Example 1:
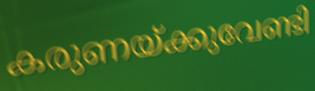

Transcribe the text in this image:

കരുണയ്ക്കുവേണ്ടി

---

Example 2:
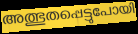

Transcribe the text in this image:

അത്ഭുതപ്പെട്ടുപോയി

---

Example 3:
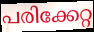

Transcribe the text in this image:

പരിക്കേറ്റ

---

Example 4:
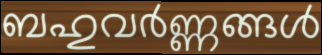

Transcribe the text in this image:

ബഹുവർണ്ണങ്ങൾ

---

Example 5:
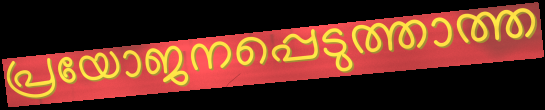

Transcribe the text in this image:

പ്രയോജനപ്പെടുത്താത്ത